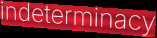
indeterminacy